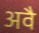
अवै